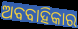
ଅବବାହିକାର